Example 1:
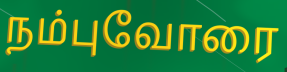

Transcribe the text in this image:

நம்புவோரை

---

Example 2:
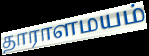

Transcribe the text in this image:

தாராளமயம்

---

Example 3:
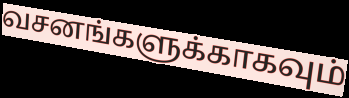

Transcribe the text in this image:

வசனங்களுக்காகவும்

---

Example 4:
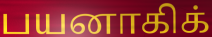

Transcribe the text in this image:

பயனாகிக்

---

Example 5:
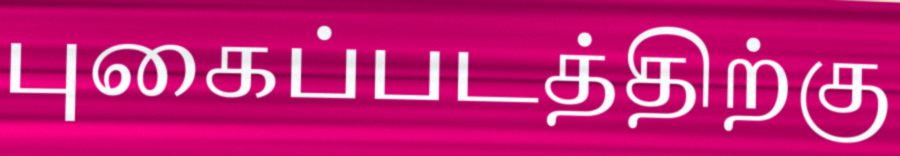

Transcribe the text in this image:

புகைப்படத்திற்கு